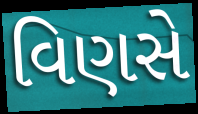
વિણસે